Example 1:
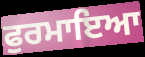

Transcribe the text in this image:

ਫੁਰਮਾਇਆ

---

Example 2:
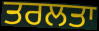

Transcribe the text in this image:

ਤਰਲਤਾ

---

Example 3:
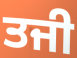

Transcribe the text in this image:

ਤਜੀ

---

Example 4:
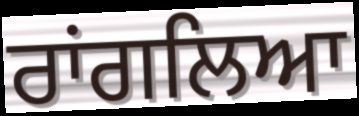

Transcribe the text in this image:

ਰਾਂਗਲਿਆ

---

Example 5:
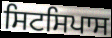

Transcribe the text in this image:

ਸਿਟਸਿਪਾਸ